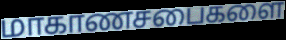
மாகாணசபைகளை